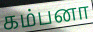
கம்பனா